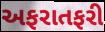
અફરાતફરી